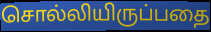
சொல்லியிருப்பதை